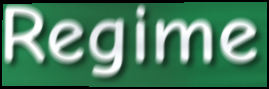
Regime